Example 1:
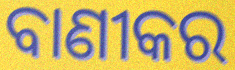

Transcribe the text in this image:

ବାଣୀକର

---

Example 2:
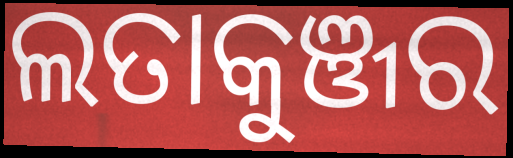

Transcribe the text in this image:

ଲତାକୁଞ୍ଜର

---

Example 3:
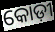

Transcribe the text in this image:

କୋଡ଼ୀ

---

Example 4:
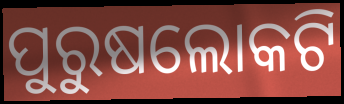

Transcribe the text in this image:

ପୁରୁଷଲୋକଟି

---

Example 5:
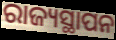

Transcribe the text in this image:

ରାଜ୍ୟସ୍ଥାପନ